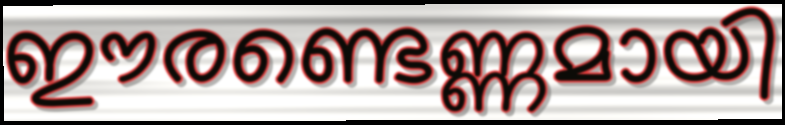
ഈരണ്ടെണ്ണമായി